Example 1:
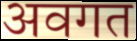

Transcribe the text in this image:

अवगत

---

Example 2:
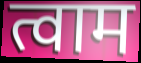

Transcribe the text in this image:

त्वाम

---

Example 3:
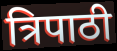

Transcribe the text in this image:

त्रिपाठी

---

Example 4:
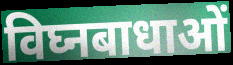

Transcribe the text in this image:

विघ्नबाधाओं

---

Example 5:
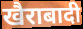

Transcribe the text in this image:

खैराबादी